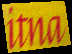
itna